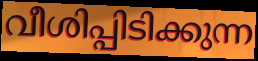
വീശിപ്പിടിക്കുന്ന